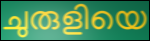
ചുരുളിയെ